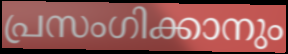
പ്രസംഗിക്കാനും